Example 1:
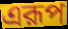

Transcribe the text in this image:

এরূপ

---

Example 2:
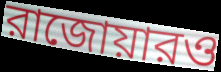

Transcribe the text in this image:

রাজোয়ারও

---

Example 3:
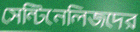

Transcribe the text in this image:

সেন্টিনেলিজদের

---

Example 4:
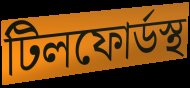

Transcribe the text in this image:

টিলফোর্ডস্থ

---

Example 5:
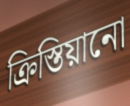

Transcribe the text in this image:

ক্রিস্তিয়ানো